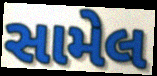
સામેલ